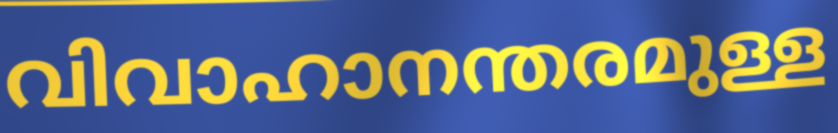
വിവാഹാനന്തരമുള്ള